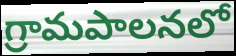
గ్రామపాలనలో